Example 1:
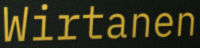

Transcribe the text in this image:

Wirtanen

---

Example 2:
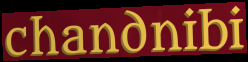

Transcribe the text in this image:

chandnibi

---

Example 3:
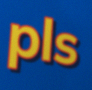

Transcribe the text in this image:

pls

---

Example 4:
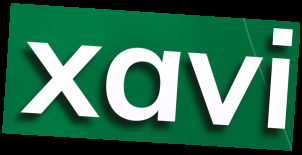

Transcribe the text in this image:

xavi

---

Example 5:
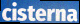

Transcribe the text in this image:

cisterna